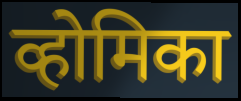
व्होमिका